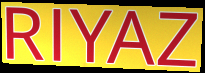
RIYAZ